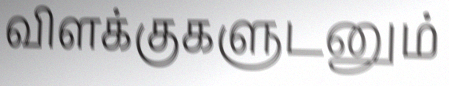
விளக்குகளுடனும்